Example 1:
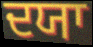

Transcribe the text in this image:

ਦਯਾ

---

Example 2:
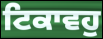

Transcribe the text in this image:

ਟਿਕਾਵਹੁ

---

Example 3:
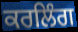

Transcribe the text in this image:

ਕਰਲਿੰਗ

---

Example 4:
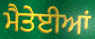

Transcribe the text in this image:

ਮੈਤੇਈਆਂ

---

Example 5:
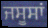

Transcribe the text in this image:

ਜਸੂਸਾਂ